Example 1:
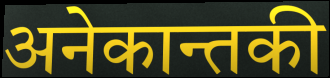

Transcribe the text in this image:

अनेकान्तकी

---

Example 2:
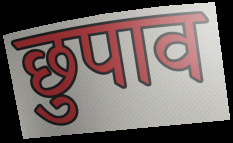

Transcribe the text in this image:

छुपाव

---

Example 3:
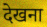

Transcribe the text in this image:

देखना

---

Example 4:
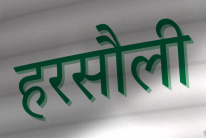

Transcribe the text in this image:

हरसौली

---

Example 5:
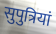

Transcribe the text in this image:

सुपुत्रियां